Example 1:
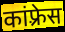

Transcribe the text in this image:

कांफ़्रेस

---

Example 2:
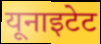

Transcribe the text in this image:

यूनाइटेट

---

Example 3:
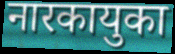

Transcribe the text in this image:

नारकायुका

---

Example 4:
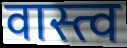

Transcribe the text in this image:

वास्त्व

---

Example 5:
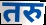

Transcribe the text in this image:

तरु